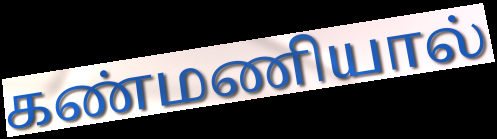
கண்மணியால்